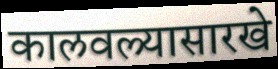
कालवल्यासारखे